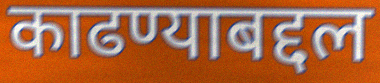
काढण्याबद्दल